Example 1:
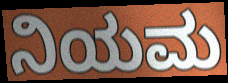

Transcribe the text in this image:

ನಿಯಮ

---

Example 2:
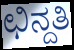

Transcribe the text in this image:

ಛಿನ್ದತಿ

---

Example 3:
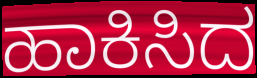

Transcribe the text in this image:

ಹಾಕಿಸಿದ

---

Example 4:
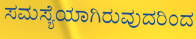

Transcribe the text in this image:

ಸಮಸ್ಯೆಯಾಗಿರುವುದರಿಂದ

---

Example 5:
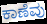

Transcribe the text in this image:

ಕಾಣೆವು